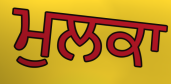
ਮੁਲਕਾ